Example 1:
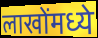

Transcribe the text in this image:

लाखोंमध्ये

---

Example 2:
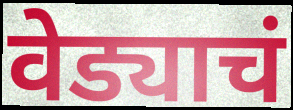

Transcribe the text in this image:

वेड्याचं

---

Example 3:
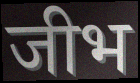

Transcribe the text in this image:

जीभ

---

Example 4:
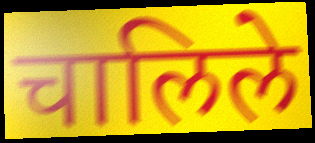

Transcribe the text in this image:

चालिले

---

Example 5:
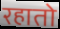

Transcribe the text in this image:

रहातो